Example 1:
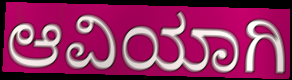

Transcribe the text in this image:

ಆವಿಯಾಗಿ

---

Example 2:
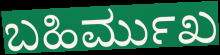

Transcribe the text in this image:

ಬಹಿರ್ಮುಖ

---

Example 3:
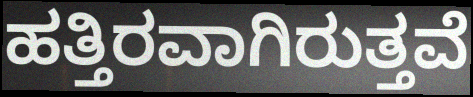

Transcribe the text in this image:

ಹತ್ತಿರವಾಗಿರುತ್ತವೆ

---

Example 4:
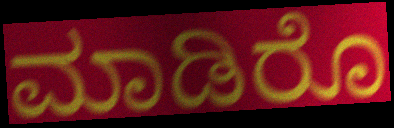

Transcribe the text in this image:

ಮಾಡಿರೊ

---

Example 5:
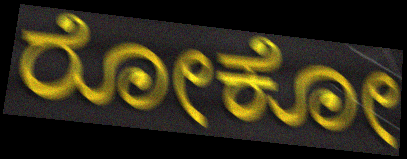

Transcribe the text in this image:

ರೋಕೋ